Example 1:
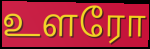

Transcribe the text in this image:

உளரோ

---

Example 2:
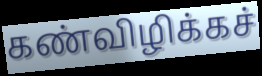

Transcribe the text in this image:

கண்விழிக்கச்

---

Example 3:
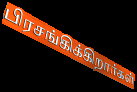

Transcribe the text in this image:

பிரசங்கிக்கிறார்கள்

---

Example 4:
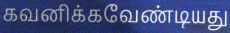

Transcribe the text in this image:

கவனிக்கவேண்டியது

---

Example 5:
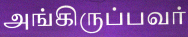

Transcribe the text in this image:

அங்கிருப்பவர்